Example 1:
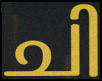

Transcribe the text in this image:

ചി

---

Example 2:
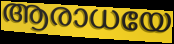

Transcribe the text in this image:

ആരാധയേ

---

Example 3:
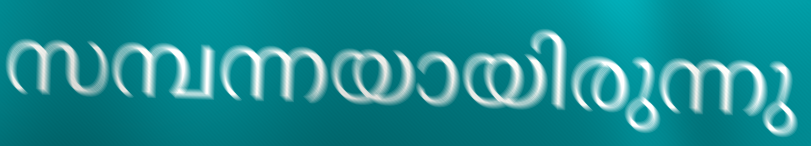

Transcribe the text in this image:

സമ്പന്നയായിരുന്നു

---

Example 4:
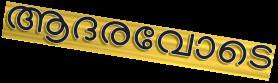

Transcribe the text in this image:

ആദരവോടെ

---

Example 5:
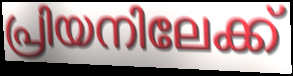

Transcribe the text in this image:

പ്രിയനിലേക്ക്